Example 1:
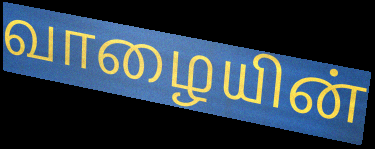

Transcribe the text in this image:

வாழையின்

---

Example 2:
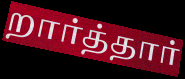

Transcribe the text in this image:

றார்த்தார்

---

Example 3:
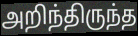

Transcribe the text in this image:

அறிந்திருந்த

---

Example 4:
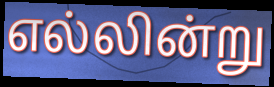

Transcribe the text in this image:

எல்லின்று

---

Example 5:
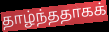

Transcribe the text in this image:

தாழ்ந்ததாகக்